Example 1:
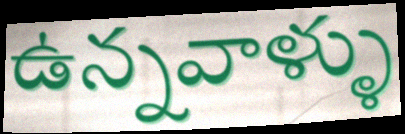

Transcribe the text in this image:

ఉన్నవాళ్ళు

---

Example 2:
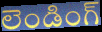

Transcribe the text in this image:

లెండింగ్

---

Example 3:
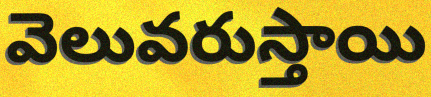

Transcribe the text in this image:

వెలువరుస్తాయి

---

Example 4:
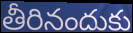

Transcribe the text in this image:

తీరినందుకు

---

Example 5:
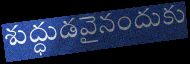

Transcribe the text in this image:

శుద్ధుడవైనందుకు